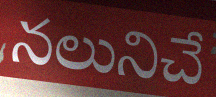
నలునిచే